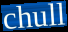
chull